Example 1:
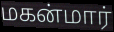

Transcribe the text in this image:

மகன்மார்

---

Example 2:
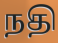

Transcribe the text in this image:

நதி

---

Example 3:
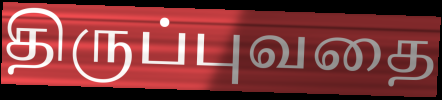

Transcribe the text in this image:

திருப்புவதை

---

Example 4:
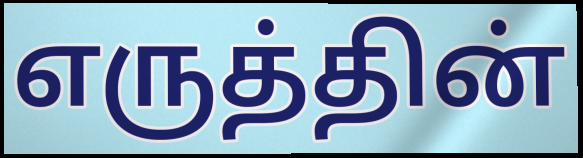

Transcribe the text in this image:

எருத்தின்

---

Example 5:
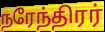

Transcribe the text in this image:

நரேந்திரர்